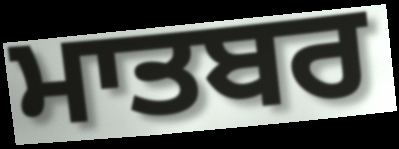
ਮਾਤਬਰ